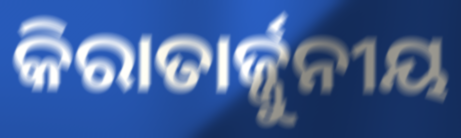
କିରାତାର୍ଜ୍ଜୁନୀୟ